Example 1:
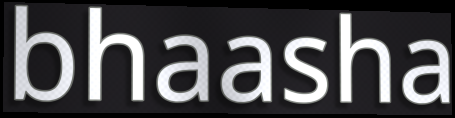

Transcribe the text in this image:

bhaasha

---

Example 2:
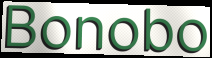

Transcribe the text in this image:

Bonobo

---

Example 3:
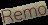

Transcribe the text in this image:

Remo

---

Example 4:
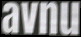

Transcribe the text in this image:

avnu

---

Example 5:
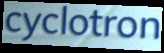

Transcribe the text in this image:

cyclotron